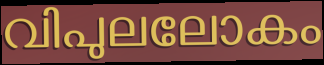
വിപുലലോകം